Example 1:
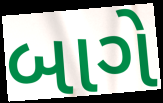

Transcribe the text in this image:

બાગે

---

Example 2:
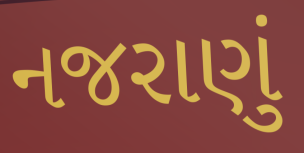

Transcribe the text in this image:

નજરાણું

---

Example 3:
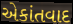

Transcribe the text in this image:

એકાંતવાદ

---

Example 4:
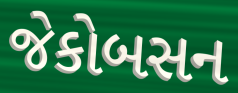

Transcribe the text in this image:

જેકોબસન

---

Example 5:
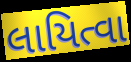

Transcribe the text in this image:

લાયિત્વા